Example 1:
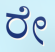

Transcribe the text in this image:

ರೇ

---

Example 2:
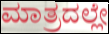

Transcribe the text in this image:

ಮಾತ್ರದಲ್ಲೇ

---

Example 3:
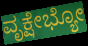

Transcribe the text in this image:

ವೃಕ್ಷೇಭ್ಯೋ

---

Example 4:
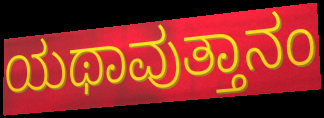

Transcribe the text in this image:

ಯಥಾವುತ್ತಾನಂ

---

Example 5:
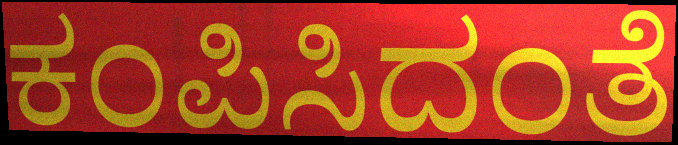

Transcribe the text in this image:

ಕಂಪಿಸಿದಂತೆ